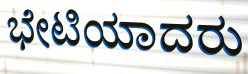
ಭೇಟಿಯಾದರು